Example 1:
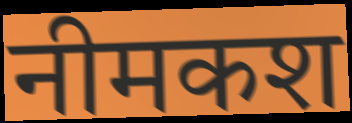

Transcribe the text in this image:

नीमकश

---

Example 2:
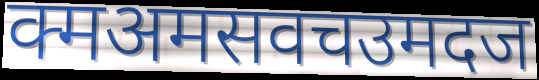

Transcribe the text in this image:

क्मअमसवचउमदज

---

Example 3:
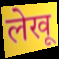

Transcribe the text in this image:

लेखू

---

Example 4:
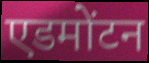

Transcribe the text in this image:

एडमोंटन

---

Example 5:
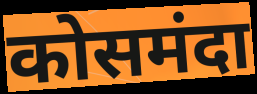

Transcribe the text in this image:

कोसमंदा